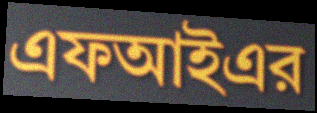
এফআইএর